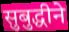
सुबुद्धीने